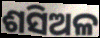
ଶସିଅଳ